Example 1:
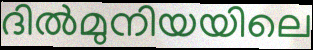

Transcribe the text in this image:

ദിൽമുനിയയിലെ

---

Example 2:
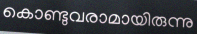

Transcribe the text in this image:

കൊണ്ടുവരാമായിരുന്നു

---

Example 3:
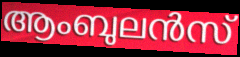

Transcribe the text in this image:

ആംബുലൻസ്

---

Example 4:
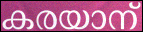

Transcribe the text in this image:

കരയാന്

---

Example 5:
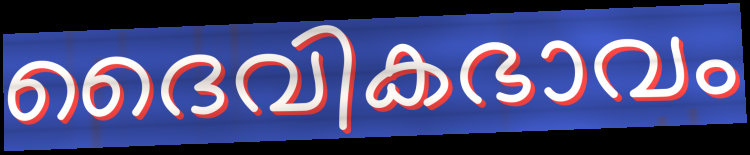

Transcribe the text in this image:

ദൈവികഭാവം